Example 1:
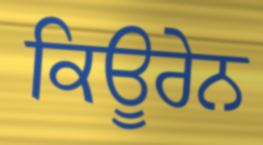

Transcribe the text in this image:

ਕਿਊਰੇਨ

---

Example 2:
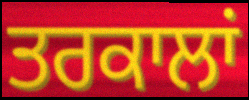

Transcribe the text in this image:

ਤਰਕਾਲਾਂ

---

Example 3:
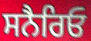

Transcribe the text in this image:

ਸਨੈਰਿਓ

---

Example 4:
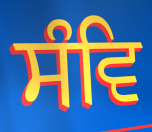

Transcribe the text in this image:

ਸੰਵਿ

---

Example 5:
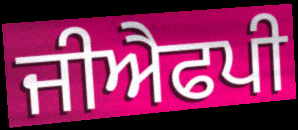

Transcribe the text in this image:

ਜੀਐਫਪੀ